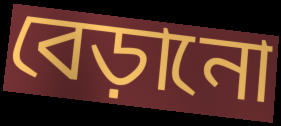
বেড়ানো